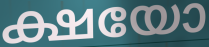
ക്ഷയോ